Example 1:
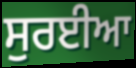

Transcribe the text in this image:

ਸੁਰਈਆ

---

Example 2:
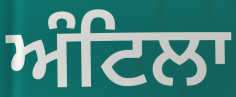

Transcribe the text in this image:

ਅੰਟਿਲਾ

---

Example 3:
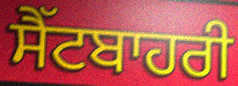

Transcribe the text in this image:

ਸੈੱਟਬਾਹਰੀ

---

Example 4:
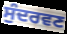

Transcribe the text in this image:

ਸੁੰਦਰਵਣ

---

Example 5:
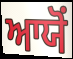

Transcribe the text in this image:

ਆਯੋਂ